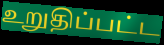
உறுதிப்பட்ட